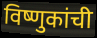
विष्णुकांची